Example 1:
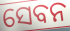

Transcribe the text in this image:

ସେବନ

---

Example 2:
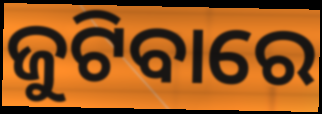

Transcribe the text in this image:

ଜୁଟିବାରେ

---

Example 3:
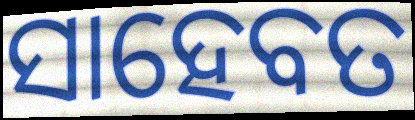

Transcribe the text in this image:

ସାହେବତ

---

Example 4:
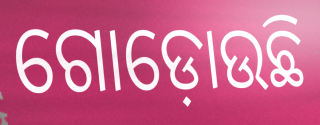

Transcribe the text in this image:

ଗୋଡ଼ୋଉଛି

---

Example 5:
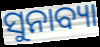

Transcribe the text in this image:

ସୁନାବ୍ୟା